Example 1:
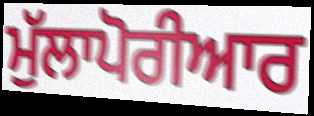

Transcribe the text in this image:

ਮੁੱਲਾਪੋਰੀਆਰ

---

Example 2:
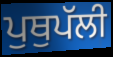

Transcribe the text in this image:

ਪੁਥੁਪੱਲੀ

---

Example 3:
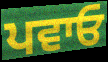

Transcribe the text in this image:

ਪਵਾਓ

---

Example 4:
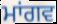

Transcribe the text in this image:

ਮਾਂਗਵ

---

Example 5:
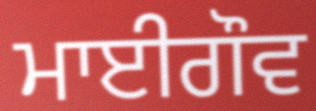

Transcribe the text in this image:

ਮਾਈਗੌਵ